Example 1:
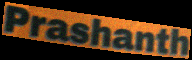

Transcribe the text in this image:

Prashanth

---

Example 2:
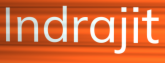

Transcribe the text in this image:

Indrajit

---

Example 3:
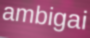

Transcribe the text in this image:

ambigai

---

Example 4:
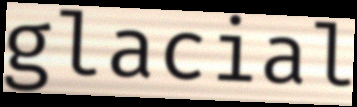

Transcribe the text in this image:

glacial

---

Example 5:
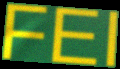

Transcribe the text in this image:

FEI